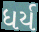
ધર્ય